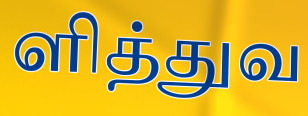
ளித்துவ